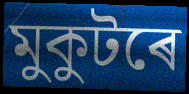
মুকুটৰে